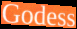
Godess